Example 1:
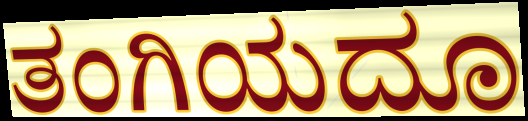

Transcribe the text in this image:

ತಂಗಿಯದೂ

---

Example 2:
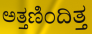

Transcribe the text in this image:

ಅತ್ತಣಿಂದಿತ್ತ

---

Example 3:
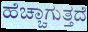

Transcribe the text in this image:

ಹೆಚ್ಚಾಗುತ್ತದೆ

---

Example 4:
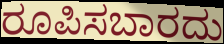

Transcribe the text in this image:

ರೂಪಿಸಬಾರದು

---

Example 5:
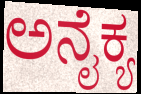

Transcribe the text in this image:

ಅನೈಕ್ಯ